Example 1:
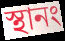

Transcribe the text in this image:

স্থানং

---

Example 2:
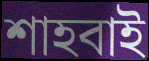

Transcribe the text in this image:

শাহবাই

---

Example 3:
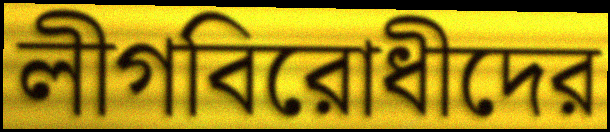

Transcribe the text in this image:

লীগবিরোধীদের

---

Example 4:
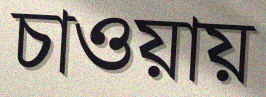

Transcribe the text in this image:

চাওয়ায়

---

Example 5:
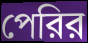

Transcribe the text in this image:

পেরির